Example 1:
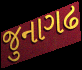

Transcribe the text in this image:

જુનાગઢ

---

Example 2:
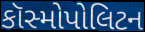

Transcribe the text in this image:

કૉસ્મોપોલિટન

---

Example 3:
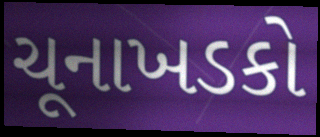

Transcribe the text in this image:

ચૂનાખડકો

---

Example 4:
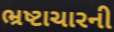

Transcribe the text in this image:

ભ્રષ્ટાચારની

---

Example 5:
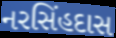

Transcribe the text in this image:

નરસિંહદાસ